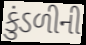
કુંડળીની